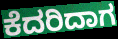
ಕೆದರಿದಾಗ